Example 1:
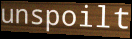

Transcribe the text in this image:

unspoilt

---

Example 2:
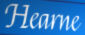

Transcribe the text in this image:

Hearne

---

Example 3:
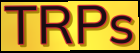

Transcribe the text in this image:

TRPs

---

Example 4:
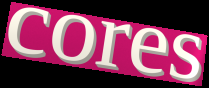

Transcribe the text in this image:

cores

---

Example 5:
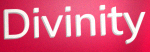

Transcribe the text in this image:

Divinity